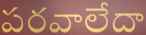
పరవాలేదా